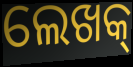
ଲେଖକ୍